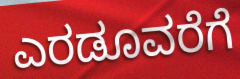
ಎರಡೂವರೆಗೆ